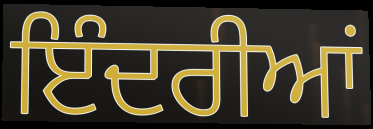
ਇੰਦਰੀਆਂ